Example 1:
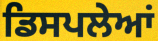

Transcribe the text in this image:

ਡਿਸਪਲੇਆਂ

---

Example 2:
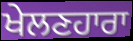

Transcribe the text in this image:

ਖੇਲਣਹਾਰਾ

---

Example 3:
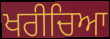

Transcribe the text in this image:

ਖਰੀਚਿਆ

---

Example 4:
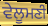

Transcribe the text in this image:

ਵੇਲੂਮਣੀ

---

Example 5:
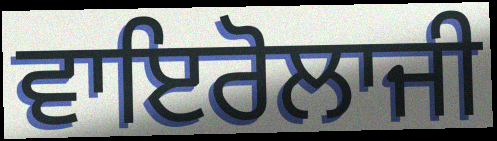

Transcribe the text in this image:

ਵਾਇਰੋਲਾਜੀ